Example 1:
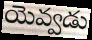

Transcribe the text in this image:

యెవ్వడు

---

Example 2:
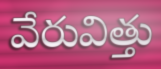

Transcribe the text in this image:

వేరువిత్తు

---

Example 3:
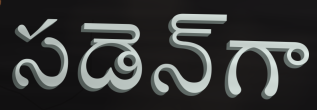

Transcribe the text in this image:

సడెన్‌గా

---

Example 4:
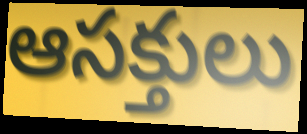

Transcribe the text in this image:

ఆసక్తులు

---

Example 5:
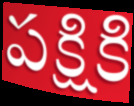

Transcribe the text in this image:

పక్షికి